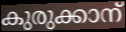
കുരുക്കാന്